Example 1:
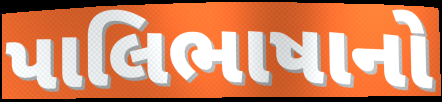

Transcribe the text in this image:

પાલિભાષાનો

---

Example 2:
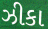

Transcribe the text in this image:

ઝીકા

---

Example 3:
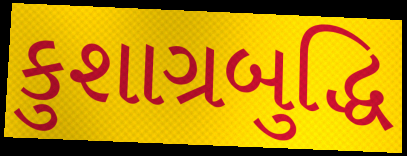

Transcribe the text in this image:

કુશાગ્રબુદ્ધિ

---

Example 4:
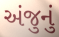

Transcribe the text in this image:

અંજુનું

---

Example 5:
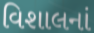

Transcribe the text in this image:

વિશાલનાં